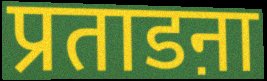
प्रताडऩा